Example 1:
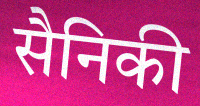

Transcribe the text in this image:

सैनिकी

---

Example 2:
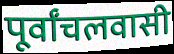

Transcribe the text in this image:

पूर्वांचलवासी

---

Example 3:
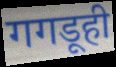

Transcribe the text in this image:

गगडूही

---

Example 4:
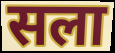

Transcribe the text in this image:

सला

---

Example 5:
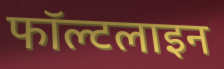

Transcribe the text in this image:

फॉल्टलाइन